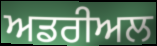
ਅਡਰੀਅਲ